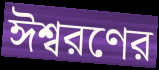
ঈশ্বরণের